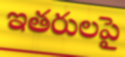
ఇతరులపై